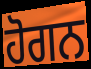
ਹੋਗਨ